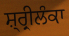
ਸ਼੍ਰ੍ਰੀਲੰਕਾ